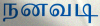
நனவடி